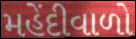
મહેંદીવાળો